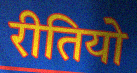
रीतियो